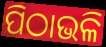
ପିଠାଭଳି